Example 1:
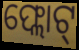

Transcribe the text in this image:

ଫ୍ଲୋଟ୍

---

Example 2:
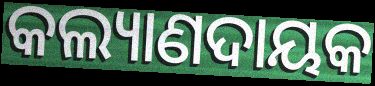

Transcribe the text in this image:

କଲ୍ୟାଣଦାୟକ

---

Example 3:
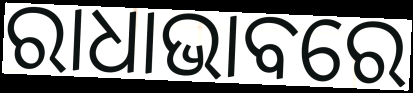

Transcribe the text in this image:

ରାଧାଭାବରେ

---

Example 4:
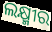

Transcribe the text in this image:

ଲକ୍ଷ୍ମୀର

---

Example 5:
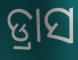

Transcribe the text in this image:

ଡ୍ରାସ